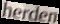
herden